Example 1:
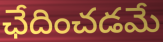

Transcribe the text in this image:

ఛేదించడమే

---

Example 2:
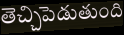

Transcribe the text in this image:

తెచ్చిపెడుతుంది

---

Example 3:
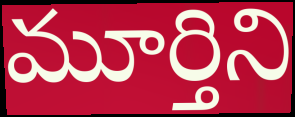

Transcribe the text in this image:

మూర్తిని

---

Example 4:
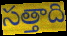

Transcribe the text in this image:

సత్తాది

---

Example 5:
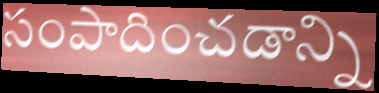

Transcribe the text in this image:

సంపాదించడాన్ని